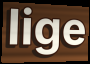
lige